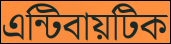
এন্টিবায়টিক